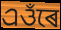
এওঁৰে